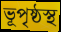
ভূপৃষ্ঠস্থ